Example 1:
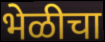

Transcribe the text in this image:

भेळीचा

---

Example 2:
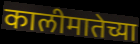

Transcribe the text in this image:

कालीमातेच्या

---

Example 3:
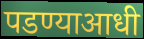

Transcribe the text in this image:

पडण्याआधी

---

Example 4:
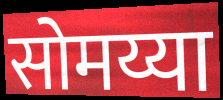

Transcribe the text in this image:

सोमय्या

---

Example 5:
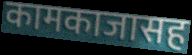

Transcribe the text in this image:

कामकाजासह